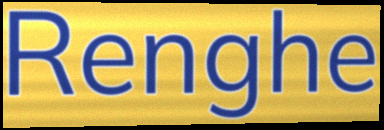
Renghe